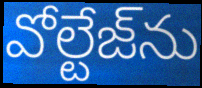
వోల్టేజ్‌ను